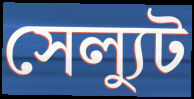
সেল্যুট